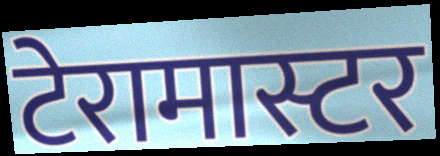
टेरामास्टर